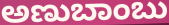
ಅಣುಬಾಂಬು